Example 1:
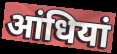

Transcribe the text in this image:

आंधियां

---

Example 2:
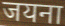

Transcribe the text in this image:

जयना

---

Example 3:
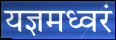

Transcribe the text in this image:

यज्ञमध्वरं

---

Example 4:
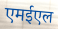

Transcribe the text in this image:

एमईएल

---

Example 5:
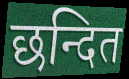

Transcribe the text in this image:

छन्दित